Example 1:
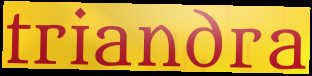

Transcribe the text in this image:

triandra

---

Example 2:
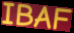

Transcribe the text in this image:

IBAF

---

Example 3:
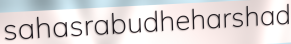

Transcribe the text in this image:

sahasrabudheharshad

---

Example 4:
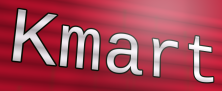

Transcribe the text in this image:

Kmart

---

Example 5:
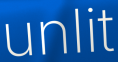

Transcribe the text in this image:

unlit